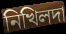
নিখিলদা